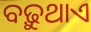
ବଢ଼ୁଥାଏ